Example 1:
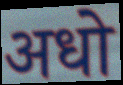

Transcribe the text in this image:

अधो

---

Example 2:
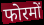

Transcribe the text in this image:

फोरमों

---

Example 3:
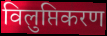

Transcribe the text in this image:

विलुप्तिकरण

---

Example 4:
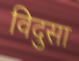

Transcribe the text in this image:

विदुसा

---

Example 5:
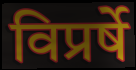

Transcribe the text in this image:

विप्रर्षे